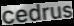
cedrus